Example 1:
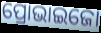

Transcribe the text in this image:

ପ୍ରୋଭାଇଜୋ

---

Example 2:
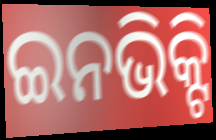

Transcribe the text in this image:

ଇନଭିକ୍ଟି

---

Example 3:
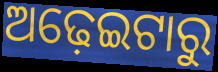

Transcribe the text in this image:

ଅଢ଼େଇଟାରୁ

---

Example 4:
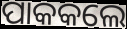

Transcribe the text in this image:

ପାକକଲେ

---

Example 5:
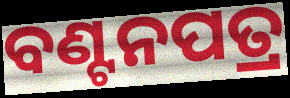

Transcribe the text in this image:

ବଣ୍ଟନପତ୍ର